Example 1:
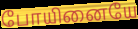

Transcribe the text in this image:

போயினையே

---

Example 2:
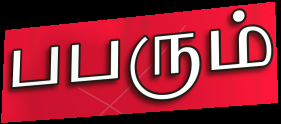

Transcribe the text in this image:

பபரும்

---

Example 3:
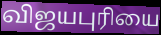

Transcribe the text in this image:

விஜயபுரியை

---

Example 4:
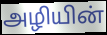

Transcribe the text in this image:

அழியின்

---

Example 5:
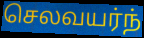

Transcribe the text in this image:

செலவயர்ந்